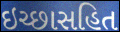
ઇચ્છાસહિત